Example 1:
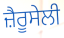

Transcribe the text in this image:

ਜ਼ੈਰੂਸੇਲੀ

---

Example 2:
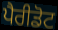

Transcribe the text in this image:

ਪੈਰੀਡੋਟ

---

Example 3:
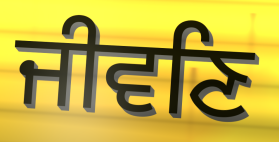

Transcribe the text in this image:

ਜੀਵਣਿ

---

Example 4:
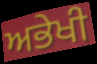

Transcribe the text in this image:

ਅਭੇਖੀ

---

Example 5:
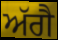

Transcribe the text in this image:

ਅੱਗੈ